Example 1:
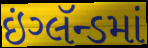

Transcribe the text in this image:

ઇંગ્લૅન્ડમાં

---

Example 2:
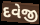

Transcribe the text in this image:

દવેજી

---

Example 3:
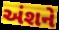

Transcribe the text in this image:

અંશને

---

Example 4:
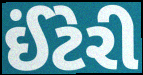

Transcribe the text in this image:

ઈંટેરી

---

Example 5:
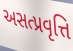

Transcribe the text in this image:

અસત્પ્રવૃત્તિ